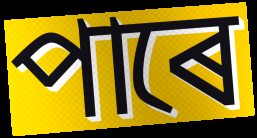
পাৰে